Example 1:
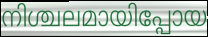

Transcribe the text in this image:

നിശ്ചലമായിപ്പോയ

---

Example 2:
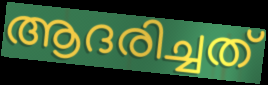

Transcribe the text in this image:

ആദരിച്ചത്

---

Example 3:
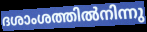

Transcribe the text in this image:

ദശാംശത്തിൽനിന്നു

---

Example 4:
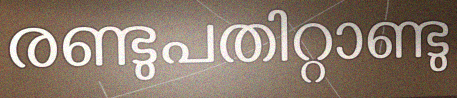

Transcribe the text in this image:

രണ്ടുപതിറ്റാണ്ടു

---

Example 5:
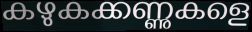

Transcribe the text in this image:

കഴുകക്കണ്ണുകളെ